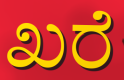
ಖರೆ